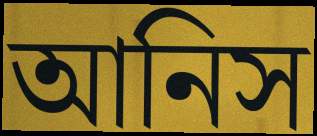
আনিস